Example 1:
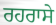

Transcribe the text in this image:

ਰਹਰਾਸੇ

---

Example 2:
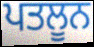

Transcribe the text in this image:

ਪਤਲੂਨ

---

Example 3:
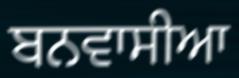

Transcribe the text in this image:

ਬਨਵਾਸੀਆ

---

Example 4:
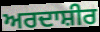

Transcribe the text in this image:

ਅਰਦਾਸ਼ੀਰ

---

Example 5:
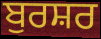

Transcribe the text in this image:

ਬੁਰਸ਼ਰ